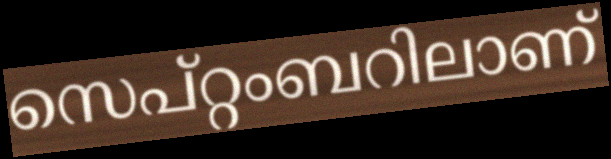
സെപ്റ്റംബറിലാണ്